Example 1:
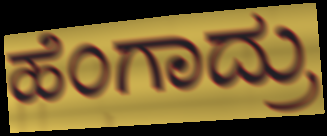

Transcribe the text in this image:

ಹೆಂಗಾದ್ರು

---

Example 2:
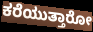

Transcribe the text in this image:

ಕರೆಯುತ್ತಾರೋ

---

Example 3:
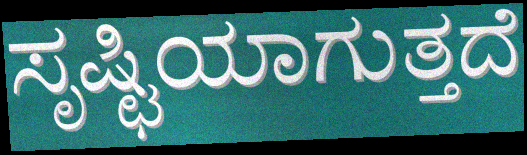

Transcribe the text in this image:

ಸೃಷ್ಟಿಯಾಗುತ್ತದೆ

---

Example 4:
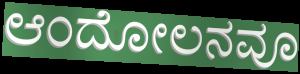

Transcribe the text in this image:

ಆಂದೋಲನವೂ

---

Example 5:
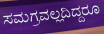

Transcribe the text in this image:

ಸಮಗ್ರವಲ್ಲದಿದ್ದರೂ